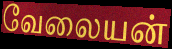
வேலையன்